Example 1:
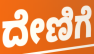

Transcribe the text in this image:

ದೇಣಿಗೆ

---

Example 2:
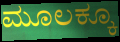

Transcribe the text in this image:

ಮೂಲಕ್ಕೂ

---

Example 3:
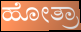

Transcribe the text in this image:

ಹೋತ್ರಾ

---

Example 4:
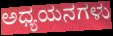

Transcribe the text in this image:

ಅಧ್ಯಯನಗಳು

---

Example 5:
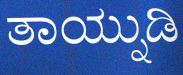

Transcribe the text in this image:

ತಾಯ್ನುಡಿ